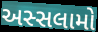
અસ્સલામો